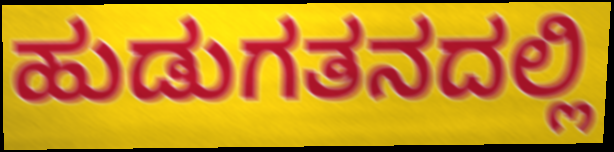
ಹುಡುಗತನದಲ್ಲಿ